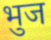
भुज